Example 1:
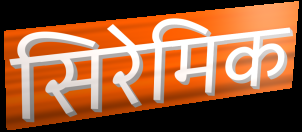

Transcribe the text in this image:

सिरेमिक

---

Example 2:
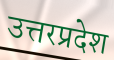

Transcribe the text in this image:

उत्तरप्रदेश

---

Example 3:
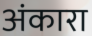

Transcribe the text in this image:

अंकारा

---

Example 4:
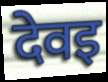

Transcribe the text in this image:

देवइ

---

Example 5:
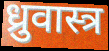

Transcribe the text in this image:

ध्रुवास्त्र